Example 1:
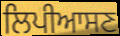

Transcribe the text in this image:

ਲਿਪੀਆਸਣ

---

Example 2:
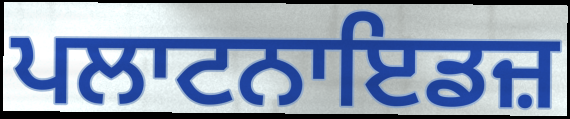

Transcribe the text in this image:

ਪਲਾਟਨਾਇਡਜ਼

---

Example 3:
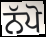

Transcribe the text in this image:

ਨੱਪੋ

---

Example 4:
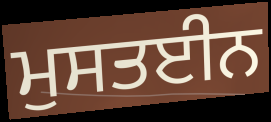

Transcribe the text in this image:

ਮੁਸਤਈਨ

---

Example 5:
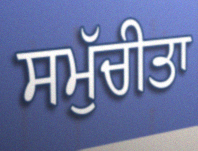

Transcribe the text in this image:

ਸਮੁੱਚੀਤਾ